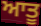
ਆਤੂ